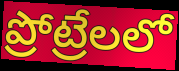
ప్రోట్రేలలో